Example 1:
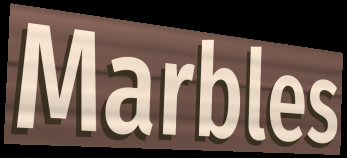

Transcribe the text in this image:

Marbles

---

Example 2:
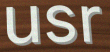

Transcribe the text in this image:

usr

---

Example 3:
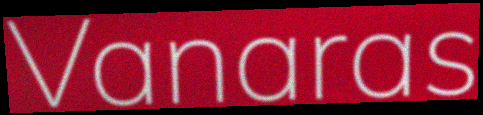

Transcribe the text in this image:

Vanaras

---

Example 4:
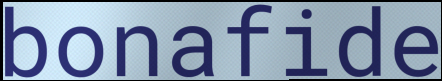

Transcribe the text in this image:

bonafide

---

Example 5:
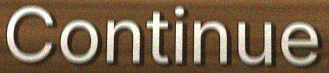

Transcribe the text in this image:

Continue